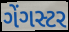
ગેંગસ્ટર